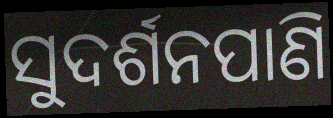
ସୁଦର୍ଶନପାଣି